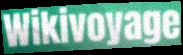
Wikivoyage